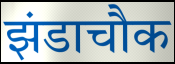
झंडाचौक